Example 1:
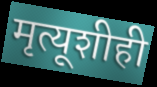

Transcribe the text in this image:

मृत्यूशीही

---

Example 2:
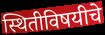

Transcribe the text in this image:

स्थितीविषयीचे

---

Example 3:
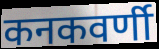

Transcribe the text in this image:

कनकवर्णी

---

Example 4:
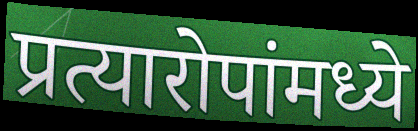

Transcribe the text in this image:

प्रत्यारोपांमध्ये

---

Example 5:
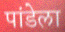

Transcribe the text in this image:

पांडेला